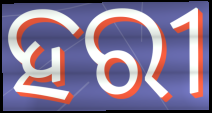
ହରୀ